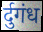
र्दुगंध